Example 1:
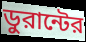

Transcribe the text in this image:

ডুরান্টের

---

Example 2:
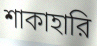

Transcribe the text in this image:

শাকাহারি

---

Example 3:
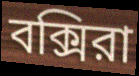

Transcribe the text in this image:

বক্সিরা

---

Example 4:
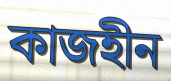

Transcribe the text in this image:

কাজহীন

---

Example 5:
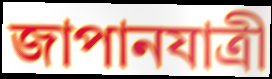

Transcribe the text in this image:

জাপানযাত্রী